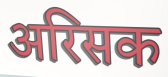
अरिसक